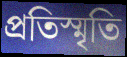
প্রতিস্মৃতি